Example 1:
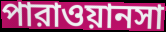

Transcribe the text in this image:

পারাওয়ানসা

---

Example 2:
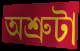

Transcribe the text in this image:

অশ্রুটা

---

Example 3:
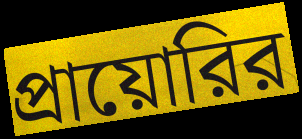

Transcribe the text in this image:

প্রায়োরির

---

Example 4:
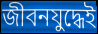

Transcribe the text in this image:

জীবনযুদ্ধেই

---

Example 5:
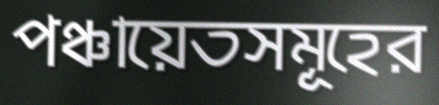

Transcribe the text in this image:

পঞ্চায়েতসমূহের